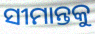
ସୀମାନ୍ତକୁ